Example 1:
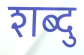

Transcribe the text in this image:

शब्दु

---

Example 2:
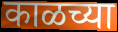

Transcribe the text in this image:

काळच्या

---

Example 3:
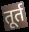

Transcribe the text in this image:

तूर्त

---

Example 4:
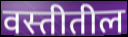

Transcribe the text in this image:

वस्तीतील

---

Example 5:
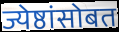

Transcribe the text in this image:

ज्येष्ठांसोबत